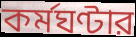
কর্মঘণ্টার